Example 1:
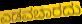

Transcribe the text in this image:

ಎಡವಬಾರದು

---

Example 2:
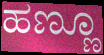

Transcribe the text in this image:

ಹಣ್ಣೂ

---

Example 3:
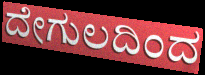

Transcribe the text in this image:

ದೇಗುಲದಿಂದ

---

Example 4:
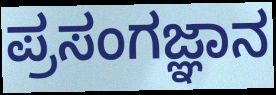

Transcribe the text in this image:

ಪ್ರಸಂಗಜ್ಞಾನ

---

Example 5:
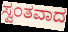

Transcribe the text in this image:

ಸ್ವಂತವಾದ